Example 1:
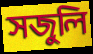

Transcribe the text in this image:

সজুলি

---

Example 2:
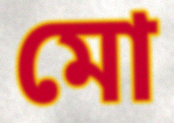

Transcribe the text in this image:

মো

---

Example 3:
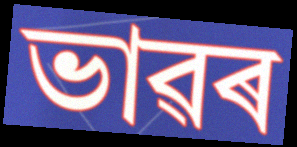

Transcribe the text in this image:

ভাৱৰ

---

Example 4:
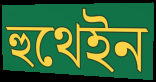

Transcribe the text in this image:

হুথেইন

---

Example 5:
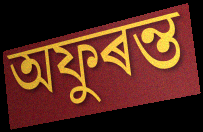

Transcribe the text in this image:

অফুৰন্ত